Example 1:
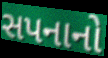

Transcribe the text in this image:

સપનાનો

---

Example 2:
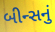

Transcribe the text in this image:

બીન્સનું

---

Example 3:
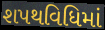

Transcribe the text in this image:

શપથવિધિમાં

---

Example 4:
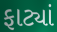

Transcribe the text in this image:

ફાટ્યાં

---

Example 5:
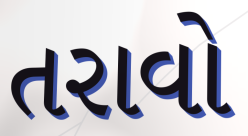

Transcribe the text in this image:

તરાવો